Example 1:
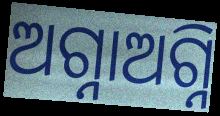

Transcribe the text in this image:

ଅଗ୍ନାଅଗ୍ନି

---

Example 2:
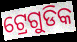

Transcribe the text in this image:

ଟ୍ରେଗୁଡିକ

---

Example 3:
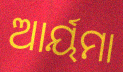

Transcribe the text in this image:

ଆର୍ୟମା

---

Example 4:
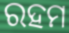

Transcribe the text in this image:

ରହମ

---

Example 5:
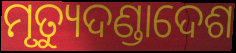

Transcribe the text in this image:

ମୃତ୍ୟୁଦଣ୍ଡାଦେଶ